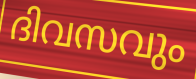
ദിവസവും